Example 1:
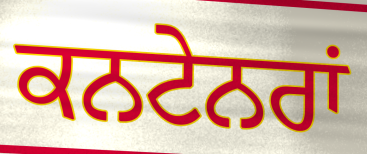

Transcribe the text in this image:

ਕਨਟੇਨਰਾਂ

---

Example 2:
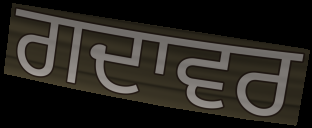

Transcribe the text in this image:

ਗਦਾਵਰ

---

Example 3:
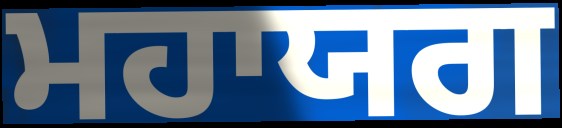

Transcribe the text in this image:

ਮਹਾਯਗ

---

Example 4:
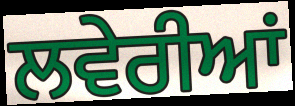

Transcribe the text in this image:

ਲਵੇਰੀਆਂ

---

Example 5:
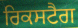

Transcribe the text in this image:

ਰਿਕਸਟੈਗ